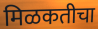
मिळकतीचा